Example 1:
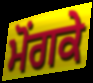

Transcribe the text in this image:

ਮੋਂਗਕੇ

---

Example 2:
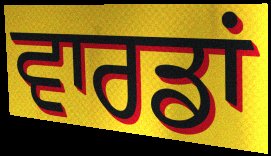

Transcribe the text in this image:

ਵਾਰਡਾਂ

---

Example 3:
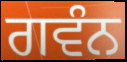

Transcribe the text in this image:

ਗਵੰਨ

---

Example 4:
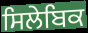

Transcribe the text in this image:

ਸਿਲੇਬਿਕ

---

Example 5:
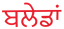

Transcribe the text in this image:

ਬਲੇਡਾਂ